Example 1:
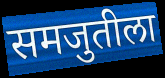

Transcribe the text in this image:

समजुतीला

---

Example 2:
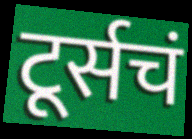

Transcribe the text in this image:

टूर्सचं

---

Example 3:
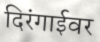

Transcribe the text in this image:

दिरंगाईवर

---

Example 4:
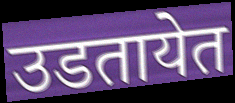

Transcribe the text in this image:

उडतायेत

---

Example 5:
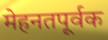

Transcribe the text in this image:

मेहनतपूर्वक